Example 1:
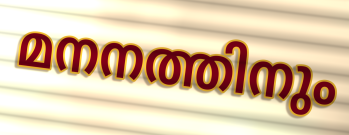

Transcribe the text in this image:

മനനത്തിനും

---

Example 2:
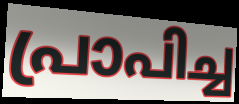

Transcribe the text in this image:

പ്രാപിച്ച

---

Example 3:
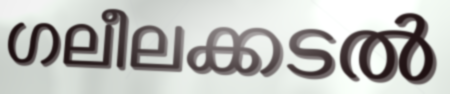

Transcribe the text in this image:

ഗലീലക്കടൽ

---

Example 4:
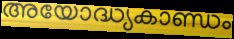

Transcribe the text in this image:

അയോദ്ധ്യകാണ്ഡം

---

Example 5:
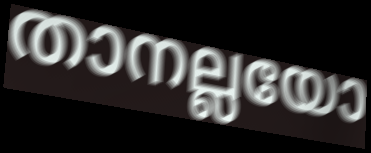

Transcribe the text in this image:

താനല്ലയോ